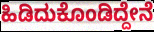
ಹಿಡಿದುಕೊಂಡಿದ್ದೇನೆ